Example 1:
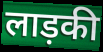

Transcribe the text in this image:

लाड़की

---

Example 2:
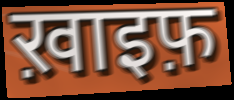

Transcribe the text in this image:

ख़ाइफ़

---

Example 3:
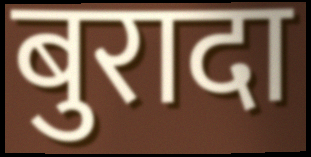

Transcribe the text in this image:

बुरादा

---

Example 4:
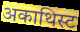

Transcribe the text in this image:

अकाथिस्ट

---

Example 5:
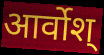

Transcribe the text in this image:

आर्वोश्